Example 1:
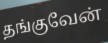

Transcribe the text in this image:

தங்குவேன்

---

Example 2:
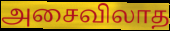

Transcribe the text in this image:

அசைவிலாத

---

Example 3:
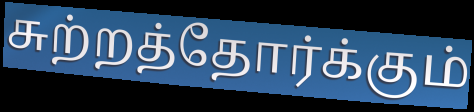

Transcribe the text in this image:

சுற்றத்தோர்க்கும்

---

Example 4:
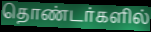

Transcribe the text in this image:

தொண்டர்களில்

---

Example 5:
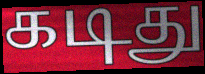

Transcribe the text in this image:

கடிது